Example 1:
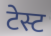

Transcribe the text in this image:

टेस्ट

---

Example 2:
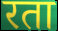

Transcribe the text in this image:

रता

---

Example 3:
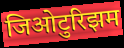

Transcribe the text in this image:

जिओटुरिझम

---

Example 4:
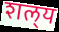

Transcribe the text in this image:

शल्य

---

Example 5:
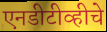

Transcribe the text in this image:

एनडीटीव्हीचे